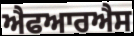
ਐਫਆਰਐਸ